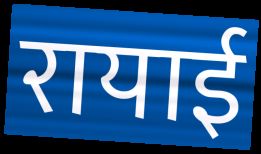
रायाई